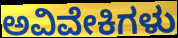
ಅವಿವೇಕಿಗಳು